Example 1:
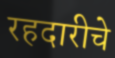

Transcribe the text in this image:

रहदारीचे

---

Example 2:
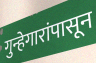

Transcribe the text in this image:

गुन्हेगारांपासून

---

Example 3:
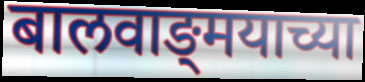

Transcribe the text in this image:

बालवाङ्‌मयाच्या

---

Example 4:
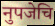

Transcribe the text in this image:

नुपजेचि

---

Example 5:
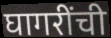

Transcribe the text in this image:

घागरींची